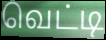
வெட்டி